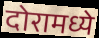
दोरामध्ये